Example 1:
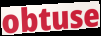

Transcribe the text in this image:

obtuse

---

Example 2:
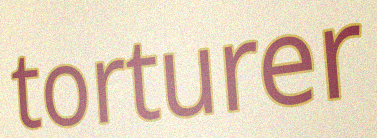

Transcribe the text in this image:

torturer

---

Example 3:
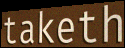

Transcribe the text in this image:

taketh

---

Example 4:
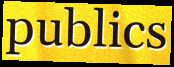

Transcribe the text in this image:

publics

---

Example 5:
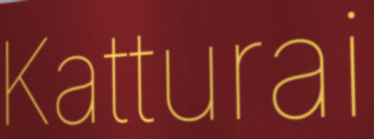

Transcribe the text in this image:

Katturai